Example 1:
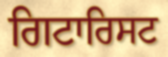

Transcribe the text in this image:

ਗਿਟਾਰਿਸਟ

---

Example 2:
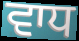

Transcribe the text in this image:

ਵਾਧ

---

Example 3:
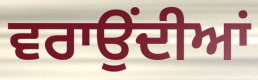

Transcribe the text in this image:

ਵਰਾਉਂਦੀਆਂ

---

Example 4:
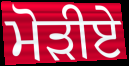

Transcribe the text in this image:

ਮੋੜੀਏ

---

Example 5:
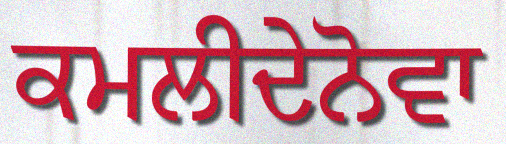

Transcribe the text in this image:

ਕਮਲੀਦੇਨੋਵਾ